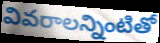
వివరాలన్నింటితో